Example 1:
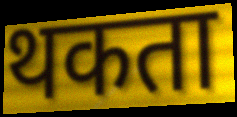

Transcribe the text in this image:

थकता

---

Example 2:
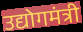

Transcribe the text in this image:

उद्योगमंत्री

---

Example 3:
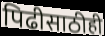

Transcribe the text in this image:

पिढीसाठीही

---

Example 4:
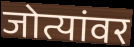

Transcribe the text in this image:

जोत्यांवर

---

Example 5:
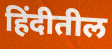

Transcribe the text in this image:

हिंदीतील